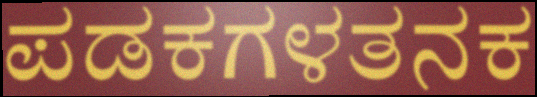
ಪಡಕಗಳತನಕ